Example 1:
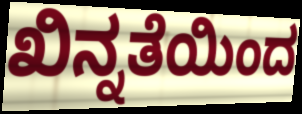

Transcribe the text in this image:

ಖಿನ್ನತೆಯಿಂದ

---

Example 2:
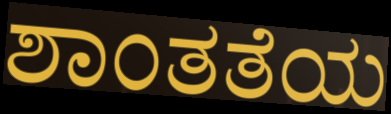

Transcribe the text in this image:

ಶಾಂತತೆಯ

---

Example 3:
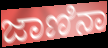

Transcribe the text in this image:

ಜಾಣಿನಾ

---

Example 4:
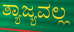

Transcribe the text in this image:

ತ್ಯಾಜ್ಯವಲ್ಲ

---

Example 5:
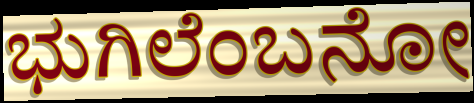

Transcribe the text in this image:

ಭುಗಿಲೆಂಬನೋ